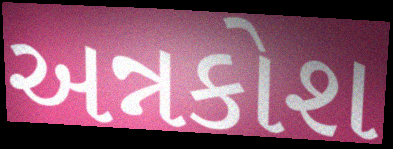
અન્નકોશ